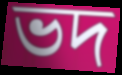
ভদ